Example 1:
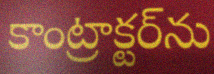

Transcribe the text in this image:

కాంట్రాక్టర్‌ను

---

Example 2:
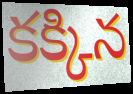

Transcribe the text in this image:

కక్కిన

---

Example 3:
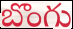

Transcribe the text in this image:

బొంగు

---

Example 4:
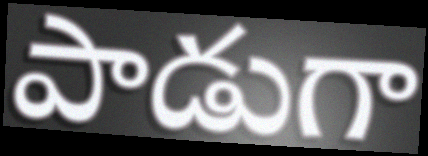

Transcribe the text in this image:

పాడుగా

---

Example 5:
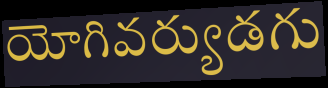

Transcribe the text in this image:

యోగివర్యుడగు